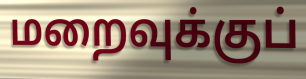
மறைவுக்குப்